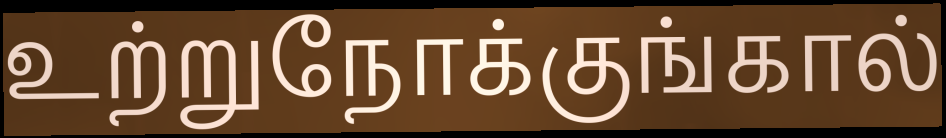
உற்றுநோக்குங்கால்